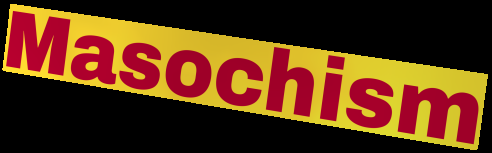
Masochism